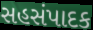
સહસંપાદક